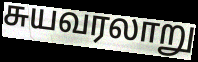
சுயவரலாறு